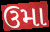
ઉમા